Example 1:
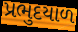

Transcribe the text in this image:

પ્રભુદયાળ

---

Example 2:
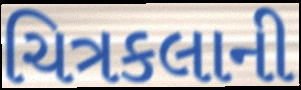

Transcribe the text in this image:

ચિત્રકલાની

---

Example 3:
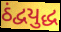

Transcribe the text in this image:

ઠંદ્વયુદ્ધ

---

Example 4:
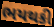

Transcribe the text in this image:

ભયથકી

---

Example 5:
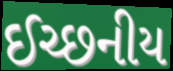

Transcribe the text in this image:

ઈચ્છનીય